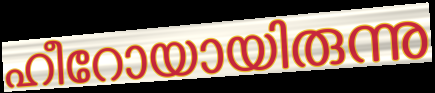
ഹീറോയായിരുന്നു